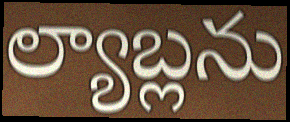
ల్యాబ్లను